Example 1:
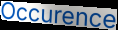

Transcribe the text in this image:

Occurence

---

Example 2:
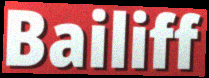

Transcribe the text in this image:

Bailiff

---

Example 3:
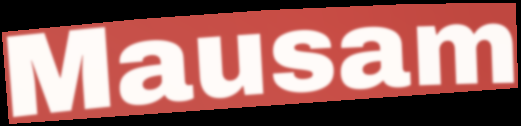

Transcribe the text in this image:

Mausam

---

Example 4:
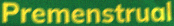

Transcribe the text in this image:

Premenstrual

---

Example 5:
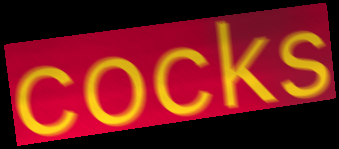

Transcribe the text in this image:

cocks